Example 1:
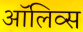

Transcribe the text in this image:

ऑलिव्स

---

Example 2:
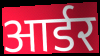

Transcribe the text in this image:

आर्डर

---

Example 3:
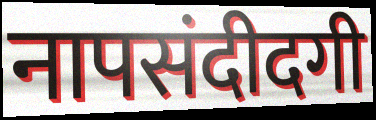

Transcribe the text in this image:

नापसंदीदगी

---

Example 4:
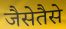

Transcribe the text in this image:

जैसेतैसे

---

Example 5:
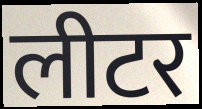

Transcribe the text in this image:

लीटर